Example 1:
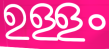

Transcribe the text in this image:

ഉള്ളം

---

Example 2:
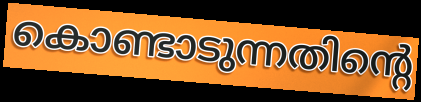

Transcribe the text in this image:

കൊണ്ടാടുന്നതിന്റെ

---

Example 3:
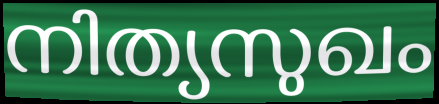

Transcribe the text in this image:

നിത്യസുഖം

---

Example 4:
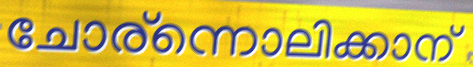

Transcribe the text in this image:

ചോര്ന്നൊലിക്കാന്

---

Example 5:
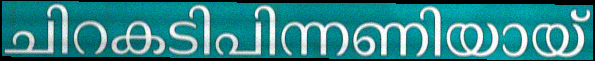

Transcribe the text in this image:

ചിറകടിപിന്നണിയായ്